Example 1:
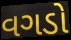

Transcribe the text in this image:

વગડો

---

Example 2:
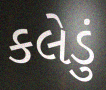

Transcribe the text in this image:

કલેડું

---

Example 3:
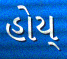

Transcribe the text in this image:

હોય્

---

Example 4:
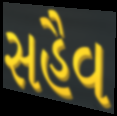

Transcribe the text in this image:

સહૈવ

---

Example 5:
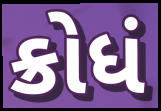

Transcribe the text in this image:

ક્રોધં